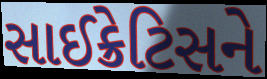
સાઈક્રેટિસને